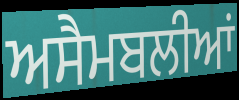
ਅਸੈਮਬਲੀਆਂ